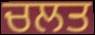
ਚਲਤ